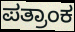
ಪತ್ರಾಂಕ